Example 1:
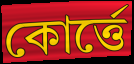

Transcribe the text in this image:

কোর্ত্তে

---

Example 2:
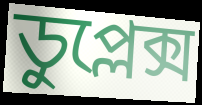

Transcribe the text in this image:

ডুপ্লেক্স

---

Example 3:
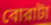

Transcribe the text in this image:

বোরাটা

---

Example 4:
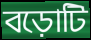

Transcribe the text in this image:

বড়োটি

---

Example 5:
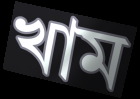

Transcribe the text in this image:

খাম